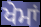
ਖੇਮਾਂ